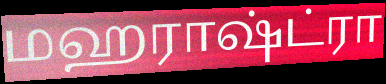
மஹராஷ்ட்ரா